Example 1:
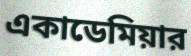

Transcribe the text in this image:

একাডেমিয়ার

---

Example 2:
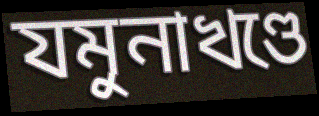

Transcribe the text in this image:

যমুনাখণ্ডে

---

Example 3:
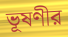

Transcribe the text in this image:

ভূষণীর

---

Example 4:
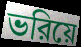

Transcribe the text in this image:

ভরিয়ে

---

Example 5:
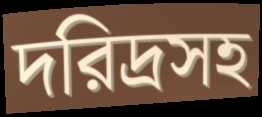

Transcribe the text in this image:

দরিদ্রসহ